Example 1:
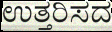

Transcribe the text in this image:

ಉತ್ತರಿಸದ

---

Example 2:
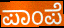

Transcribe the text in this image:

ಪಾಂಪೆ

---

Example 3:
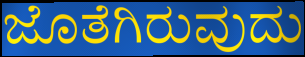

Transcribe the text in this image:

ಜೊತೆಗಿರುವುದು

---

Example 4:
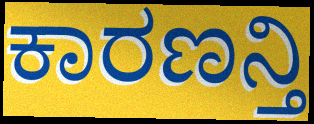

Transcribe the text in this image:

ಕಾರಣನ್ತಿ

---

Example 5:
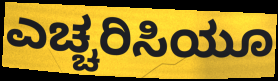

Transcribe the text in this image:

ಎಚ್ಚರಿಸಿಯೂ